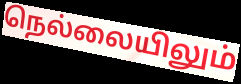
நெல்லையிலும்